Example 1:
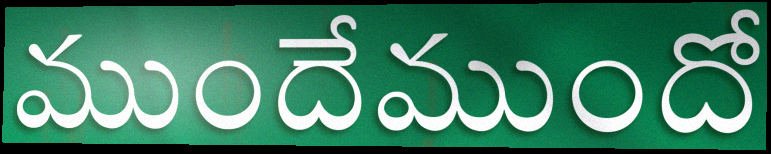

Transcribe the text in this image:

ముందేముందో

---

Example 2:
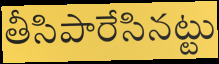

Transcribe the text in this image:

తీసిపారేసినట్టు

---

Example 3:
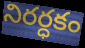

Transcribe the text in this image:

నిరర్ధకం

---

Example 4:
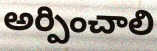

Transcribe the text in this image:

అర్పించాలి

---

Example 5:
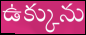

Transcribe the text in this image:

ఉక్కును